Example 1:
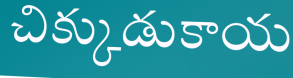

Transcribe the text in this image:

చిక్కుడుకాయ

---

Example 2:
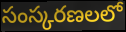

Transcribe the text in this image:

సంస్కరణలలో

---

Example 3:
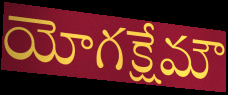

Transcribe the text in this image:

యోగక్షేమౌ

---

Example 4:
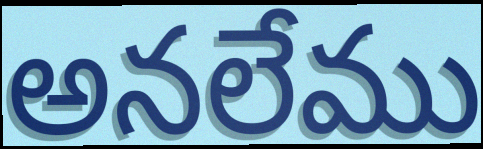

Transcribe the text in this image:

అనలేము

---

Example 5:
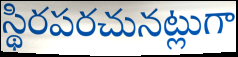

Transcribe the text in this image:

స్థిరపరచునట్లుగా